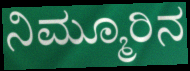
ನಿಮ್ಮೂರಿನ